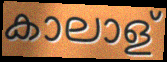
കാലാള്